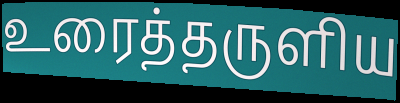
உரைத்தருளிய